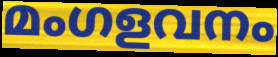
മംഗളവനം